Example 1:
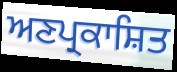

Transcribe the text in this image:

ਅਣਪ੍ਰਕਾਸ਼ਿਤ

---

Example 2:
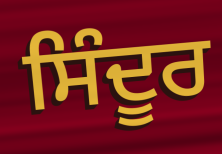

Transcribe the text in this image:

ਸਿੰਦੂਰ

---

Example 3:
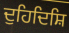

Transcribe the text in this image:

ਦੁਹਿਦਿਸ਼ਿ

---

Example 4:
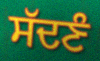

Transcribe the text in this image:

ਸੱਦਣੰ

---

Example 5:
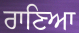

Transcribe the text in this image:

ਰਾਣਿਆ